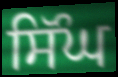
ਸਿੱੰਘ